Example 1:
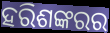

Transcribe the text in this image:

ହରିଶଙ୍କରର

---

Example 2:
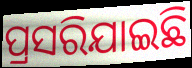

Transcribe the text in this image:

ପ୍ରସରିଯାଇଛି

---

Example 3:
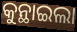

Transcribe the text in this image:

କୁନ୍ଥାଇଲା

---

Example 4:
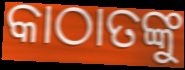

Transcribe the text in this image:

କାଠାତଙ୍କୁ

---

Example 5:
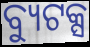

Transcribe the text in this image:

ବ୍ୟୁଟକ୍ସ